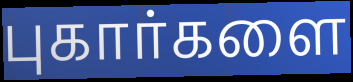
புகார்களை